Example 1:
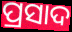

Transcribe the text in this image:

ପ୍ରସାଦ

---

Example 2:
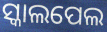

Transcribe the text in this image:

ସ୍କାଲପେଲ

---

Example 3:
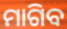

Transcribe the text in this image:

ମାଗିବ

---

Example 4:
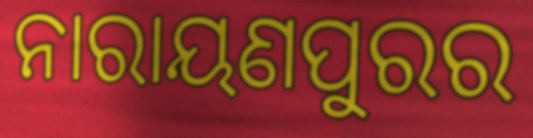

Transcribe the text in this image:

ନାରାୟଣପୁରର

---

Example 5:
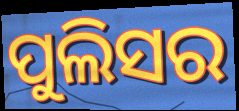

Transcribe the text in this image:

ପୁଲିସର